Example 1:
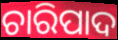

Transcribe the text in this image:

ଚାରିପାଦ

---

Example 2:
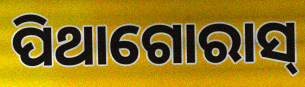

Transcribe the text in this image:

ପିଥାଗୋରାସ୍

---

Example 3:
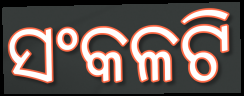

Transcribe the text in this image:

ସଂକଳଟି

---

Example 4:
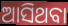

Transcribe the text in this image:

ଆସିଥବା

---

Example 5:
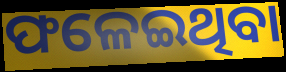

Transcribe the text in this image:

ଫଳେଇଥିବା